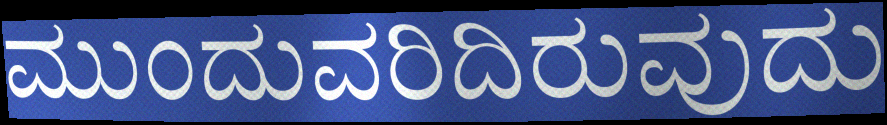
ಮುಂದುವರಿದಿರುವುದು